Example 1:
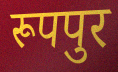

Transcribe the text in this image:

रूपपुर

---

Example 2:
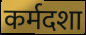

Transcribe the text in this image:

कर्मदशा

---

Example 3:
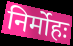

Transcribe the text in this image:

निर्मोहः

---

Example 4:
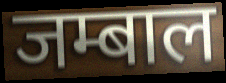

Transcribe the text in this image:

जम्बाल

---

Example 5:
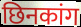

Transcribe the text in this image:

छिनकांग